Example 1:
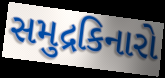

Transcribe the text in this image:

સમુદ્રકિનારો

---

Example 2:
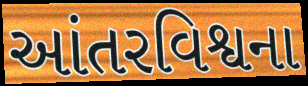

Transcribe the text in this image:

આંતરવિશ્વના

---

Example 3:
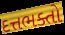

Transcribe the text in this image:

દત્તભક્તો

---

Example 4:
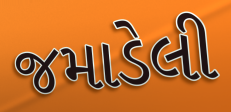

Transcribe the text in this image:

જમાડેલી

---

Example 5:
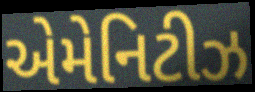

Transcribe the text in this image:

એમેનિટીઝ